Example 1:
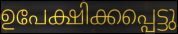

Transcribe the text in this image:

ഉപേക്ഷിക്കപ്പെട്ടു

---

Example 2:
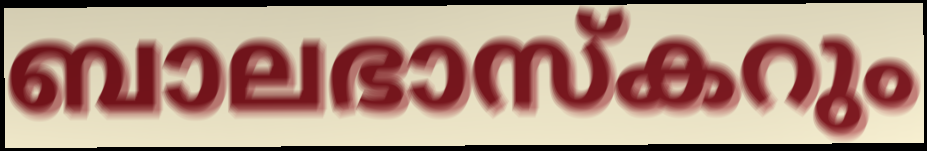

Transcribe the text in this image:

ബാലഭാസ്കറും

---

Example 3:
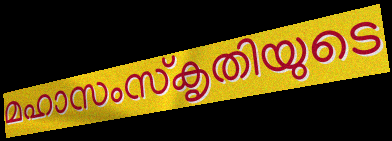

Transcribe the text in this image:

മഹാസംസ്കൃതിയുടെ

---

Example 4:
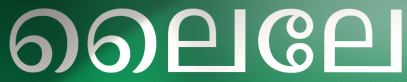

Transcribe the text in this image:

ലൈലേ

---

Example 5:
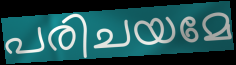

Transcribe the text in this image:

പരിചയമേ